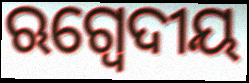
ଋଗ୍ବେଦୀୟ